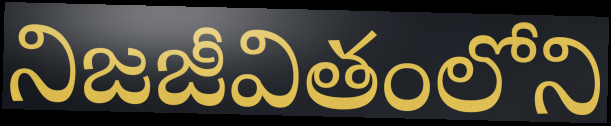
నిజజీవితంలోని